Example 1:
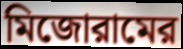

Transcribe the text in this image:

মিজোরামের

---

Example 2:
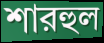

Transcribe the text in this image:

শারহুল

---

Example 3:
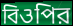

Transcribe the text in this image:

বিওপির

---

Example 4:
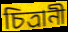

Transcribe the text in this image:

চিত্রানী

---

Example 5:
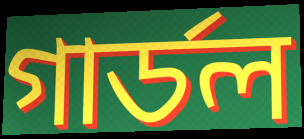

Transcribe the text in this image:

গার্ডল